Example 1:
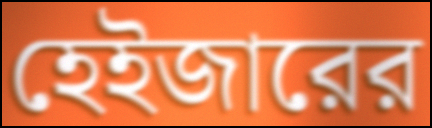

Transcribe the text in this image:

হেইজারের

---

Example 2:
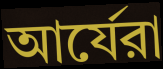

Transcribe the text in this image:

আর্যেরা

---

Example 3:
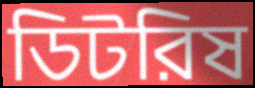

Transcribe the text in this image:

ডিটরিষ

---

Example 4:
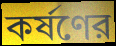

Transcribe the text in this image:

কর্ষণের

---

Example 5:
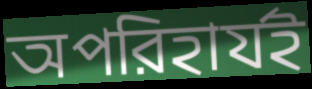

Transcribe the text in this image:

অপরিহার্যই